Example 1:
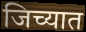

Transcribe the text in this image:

जिच्यात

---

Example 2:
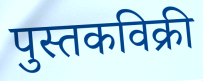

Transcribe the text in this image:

पुस्तकविक्री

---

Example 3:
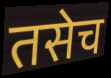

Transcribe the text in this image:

तसेच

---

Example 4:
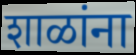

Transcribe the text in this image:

शाळांना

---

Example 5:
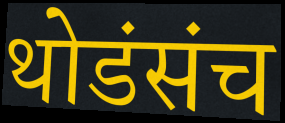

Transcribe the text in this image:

थोडंसंच